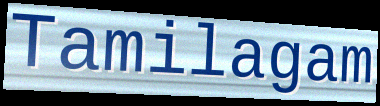
Tamilagam